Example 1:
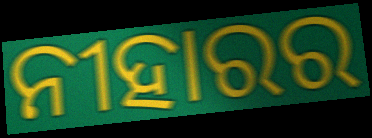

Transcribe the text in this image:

ନୀହାରର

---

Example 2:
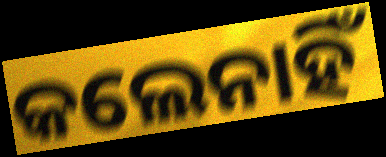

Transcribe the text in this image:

କଲେନାହିଁ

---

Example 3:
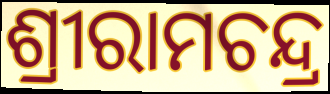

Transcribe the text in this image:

ଶ୍ରୀରାମଚନ୍ଦ୍ର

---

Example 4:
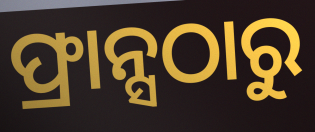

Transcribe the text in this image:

ଫ୍ରାନ୍ସଠାରୁ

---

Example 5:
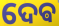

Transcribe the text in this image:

ଦେଵ